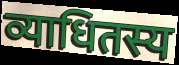
व्याधितस्य